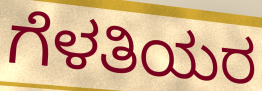
ಗೆಳತಿಯರ